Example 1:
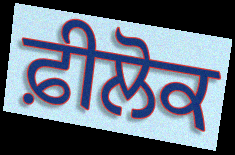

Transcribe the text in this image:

ਫ਼ੀਲੋਕ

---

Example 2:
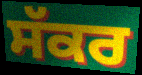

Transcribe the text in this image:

ਸੱਕਰ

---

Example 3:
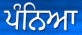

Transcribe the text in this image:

ਪੰਨਿਆ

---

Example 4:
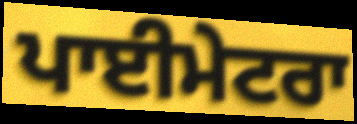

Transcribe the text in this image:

ਪਾਈਮੇਟਰਾ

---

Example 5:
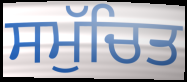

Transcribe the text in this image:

ਸਮੁੱਚਿਤ